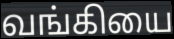
வங்கியை